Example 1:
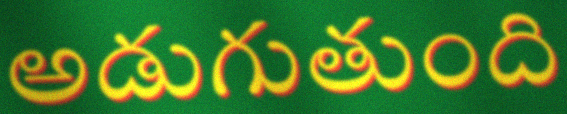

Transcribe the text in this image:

అడుగుతుంది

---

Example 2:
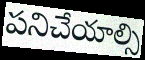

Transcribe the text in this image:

పనిచేయాల్సి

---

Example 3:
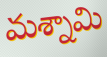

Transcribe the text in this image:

మశ్నామి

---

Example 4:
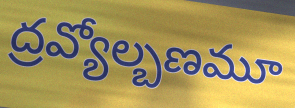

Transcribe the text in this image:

ద్రవ్యోల్బణమూ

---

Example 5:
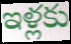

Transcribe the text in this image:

ఇళ్లకు